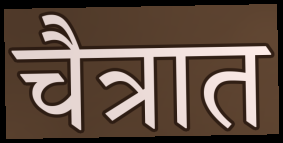
चैत्रात